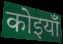
कोइयाँ